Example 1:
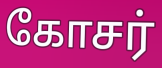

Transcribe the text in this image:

கோசர்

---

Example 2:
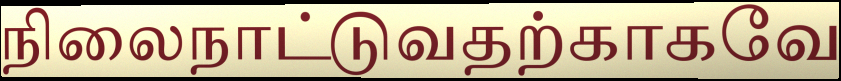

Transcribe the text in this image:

நிலைநாட்டுவதற்காகவே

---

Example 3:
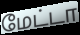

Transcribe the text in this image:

மேட்டா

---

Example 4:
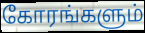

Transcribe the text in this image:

கோரங்களும்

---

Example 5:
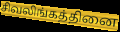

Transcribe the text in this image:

சிவலிங்கத்தினை